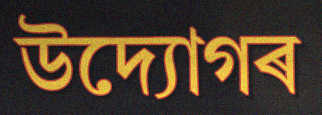
উদ্যোগৰ